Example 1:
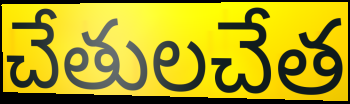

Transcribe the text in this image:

చేతులచేత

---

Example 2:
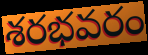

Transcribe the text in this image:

శరభవరం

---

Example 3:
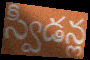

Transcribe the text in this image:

స్వీడన్ల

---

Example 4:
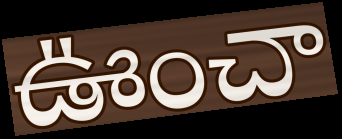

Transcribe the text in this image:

ఊంచా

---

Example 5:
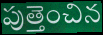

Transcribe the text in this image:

పుత్తెంచిన